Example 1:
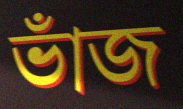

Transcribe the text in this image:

ভাঁজ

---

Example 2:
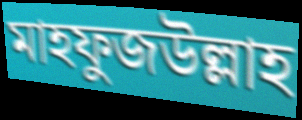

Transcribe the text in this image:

মাহফুজউল্লাহ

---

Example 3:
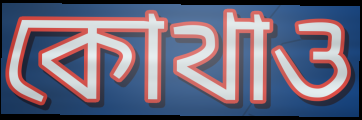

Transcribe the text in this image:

কোথাও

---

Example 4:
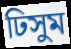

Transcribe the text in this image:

ঢিসুম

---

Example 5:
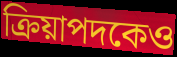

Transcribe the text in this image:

ক্রিয়াপদকেও